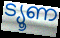
ട്യൂണ